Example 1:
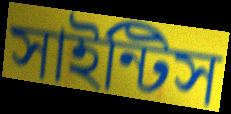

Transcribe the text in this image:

সাইন্টিস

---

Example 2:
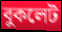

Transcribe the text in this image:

বুকলেট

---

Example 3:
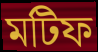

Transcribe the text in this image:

মটিফ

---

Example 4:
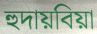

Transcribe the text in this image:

হুদায়বিয়া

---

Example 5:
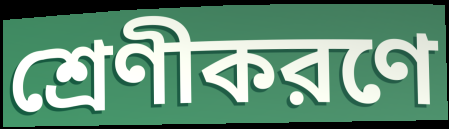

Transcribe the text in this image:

শ্রেণীকরণে